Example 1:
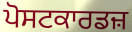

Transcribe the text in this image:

ਪੋਸਟਕਾਰਡਜ਼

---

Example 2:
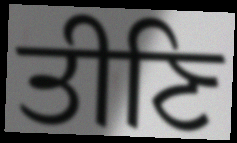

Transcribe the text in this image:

ਤੀਣਿ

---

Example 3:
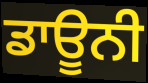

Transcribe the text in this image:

ਡਾਊਨੀ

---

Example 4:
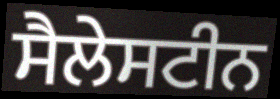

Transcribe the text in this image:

ਸੈਲੇਸਟੀਨ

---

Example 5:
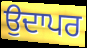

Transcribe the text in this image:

ਉਦਾਪਰ